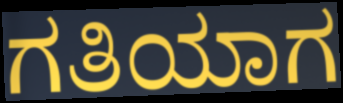
ಗತಿಯಾಗ